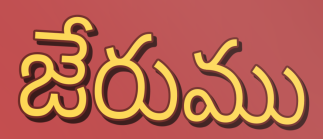
జేరుము